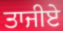
ਤਾਜੀਏ